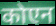
कोएन